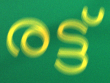
രട്ട്